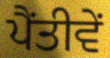
ਪੈਂਤੀਵੇਂ